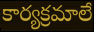
కార్యక్రమాలే